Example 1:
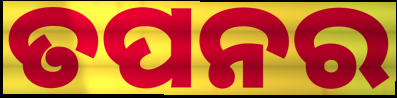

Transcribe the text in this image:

ତପନର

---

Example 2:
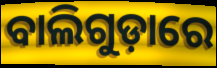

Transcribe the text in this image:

ବାଲିଗୁଡ଼ାରେ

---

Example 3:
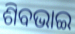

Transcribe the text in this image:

ଶିବଭାଇ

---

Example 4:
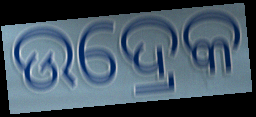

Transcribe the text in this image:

ଉଦ୍ରେକ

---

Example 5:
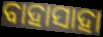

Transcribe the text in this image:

ବାହାସାହା